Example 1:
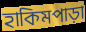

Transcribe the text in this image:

হাকিমপাড়া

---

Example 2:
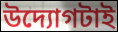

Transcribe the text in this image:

উদ্যোগটাই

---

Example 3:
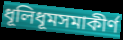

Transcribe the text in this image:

ধূলিধূমসমাকীর্ণ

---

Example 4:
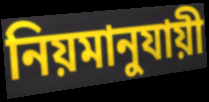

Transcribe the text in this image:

নিয়মানুযায়ী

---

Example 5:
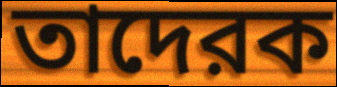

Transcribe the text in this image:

তাদেরক